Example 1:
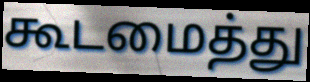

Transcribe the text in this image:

கூடமைத்து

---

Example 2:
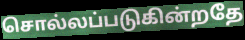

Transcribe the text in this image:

சொல்லப்படுகின்றதே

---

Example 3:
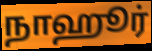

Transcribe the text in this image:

நாஹூர்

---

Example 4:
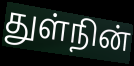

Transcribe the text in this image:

துள்நின்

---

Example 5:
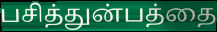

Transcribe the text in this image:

பசித்துன்பத்தை